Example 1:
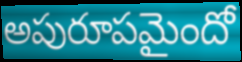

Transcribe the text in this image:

అపురూపమైందో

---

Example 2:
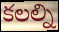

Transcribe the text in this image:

కలల్ని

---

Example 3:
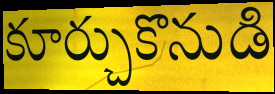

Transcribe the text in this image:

కూర్చుకొనుడి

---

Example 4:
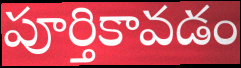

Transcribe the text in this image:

పూర్తికావడం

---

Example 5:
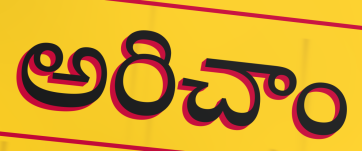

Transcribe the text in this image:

అరిచాం